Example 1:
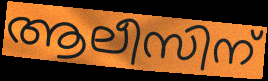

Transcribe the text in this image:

ആലീസിന്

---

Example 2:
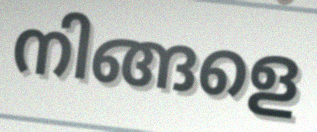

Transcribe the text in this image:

നിങ്ങളെ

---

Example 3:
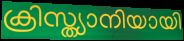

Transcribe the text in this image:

ക്രിസ്ത്യാനിയായി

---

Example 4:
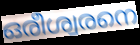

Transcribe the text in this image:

ഒരീശ്വരനെ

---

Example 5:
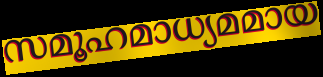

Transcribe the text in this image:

സമൂഹമാധ്യമമായ